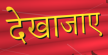
देखाजाए